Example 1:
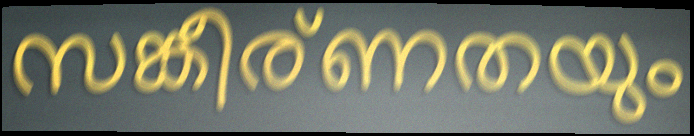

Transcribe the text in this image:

സങ്കീര്ണതയും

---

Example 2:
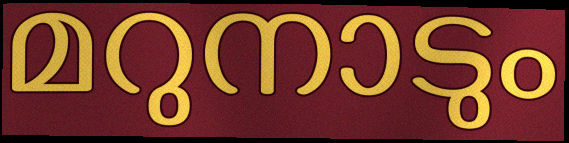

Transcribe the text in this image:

മറുനാടും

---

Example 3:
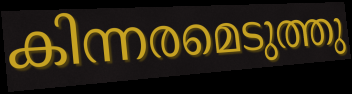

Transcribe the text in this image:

കിന്നരമെടുത്തു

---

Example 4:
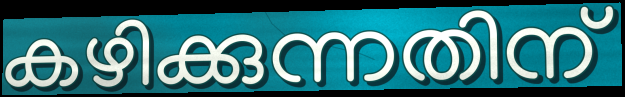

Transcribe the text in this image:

കഴിക്കുന്നതിന്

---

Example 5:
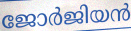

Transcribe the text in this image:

ജോർജിയൻ